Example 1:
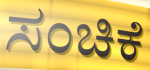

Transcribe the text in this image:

ಸಂಚಿಕೆ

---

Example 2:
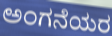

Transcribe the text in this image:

ಅಂಗನೆಯರ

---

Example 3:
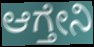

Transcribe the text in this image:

ಆಗ್ತೇನಿ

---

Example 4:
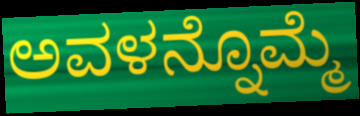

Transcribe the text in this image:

ಅವಳನ್ನೊಮ್ಮೆ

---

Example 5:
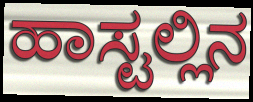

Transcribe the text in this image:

ಹಾಸ್ಟಲ್ಲಿನ